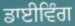
ਡਾਈਵਿੰਗ